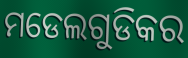
ମଡେଲଗୁଡିକର